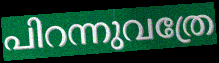
പിറന്നുവത്രേ